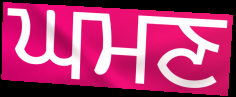
ਘਮਣ